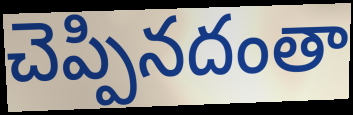
చెప్పినదంతా